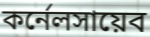
কর্নেলসায়েব